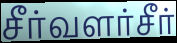
சீர்வளர்சீர்